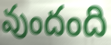
వుందంది